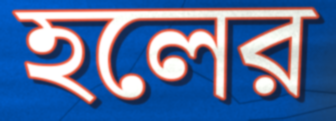
হলের